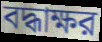
বদ্ধাক্ষর